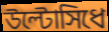
উল্টোসিধে